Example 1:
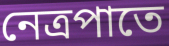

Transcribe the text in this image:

নেত্রপাতে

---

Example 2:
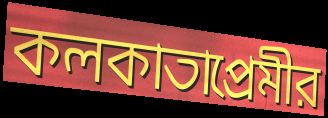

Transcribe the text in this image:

কলকাতাপ্রেমীর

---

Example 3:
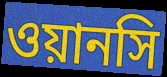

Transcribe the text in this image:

ওয়ানসি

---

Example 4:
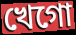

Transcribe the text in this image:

খেগো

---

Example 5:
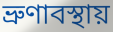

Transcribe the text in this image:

ভ্রুণাবস্থায়